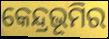
କେନ୍ଦ୍ରଭୂମିର